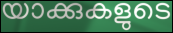
യാക്കുകളുടെ